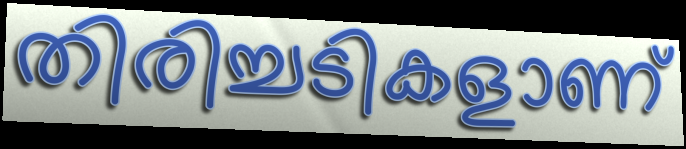
തിരിച്ചടികളാണ്